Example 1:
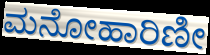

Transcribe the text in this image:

ಮನೋಹಾರಿಣೀ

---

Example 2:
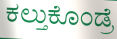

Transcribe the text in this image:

ಕಲ್ತುಕೊಂಡ್ರೆ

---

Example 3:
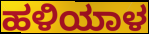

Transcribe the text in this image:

ಹಳಿಯಾಳ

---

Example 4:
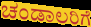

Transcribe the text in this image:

ಚಂಡಾಲರಿಗೆ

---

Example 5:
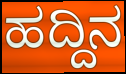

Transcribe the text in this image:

ಹದ್ದಿನ